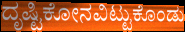
ದೃಷ್ಟಿಕೋನವಿಟ್ಟುಕೊಂಡು